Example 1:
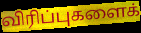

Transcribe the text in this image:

விரிப்புகளைக்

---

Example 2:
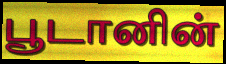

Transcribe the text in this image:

பூடானின்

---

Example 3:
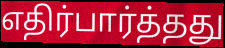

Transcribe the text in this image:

எதிர்பார்த்தது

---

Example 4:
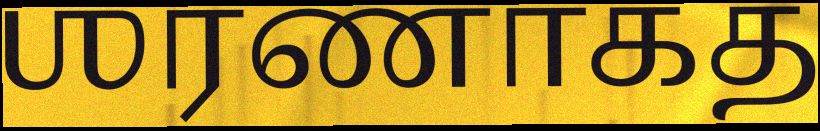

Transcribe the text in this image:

ஶரணாகத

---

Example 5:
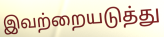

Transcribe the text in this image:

இவற்றையடுத்து